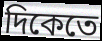
দিকেতে